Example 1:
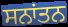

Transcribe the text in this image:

ਸਨਾਂਤਨ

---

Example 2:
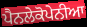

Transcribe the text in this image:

ਪੈਨਲੇਕੋਪੇਨੀਆ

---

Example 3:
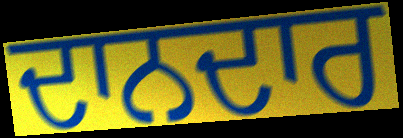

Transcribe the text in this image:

ਦਾਨਦਾਰ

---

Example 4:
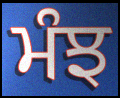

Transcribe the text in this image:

ਮੰਝ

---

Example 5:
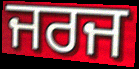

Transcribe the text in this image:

ਜਰਜ